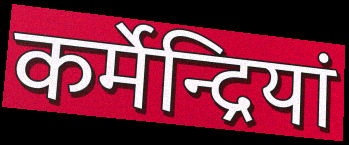
कर्मेन्द्रियां